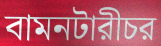
বামনটারীচর